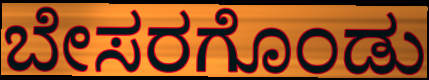
ಬೇಸರಗೊಂಡು